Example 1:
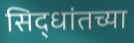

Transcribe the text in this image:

सिद्धांतच्या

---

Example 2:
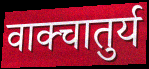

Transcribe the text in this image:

वाक्चातुर्य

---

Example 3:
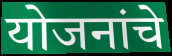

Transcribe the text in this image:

योजनांचे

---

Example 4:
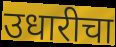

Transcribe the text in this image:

उधारीचा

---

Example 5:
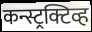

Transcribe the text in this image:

कन्स्ट्रक्टिव्ह